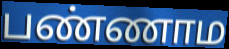
பண்ணாம